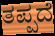
ತಪ್ಪದೆ